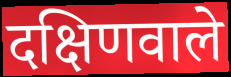
दक्षिणवाले